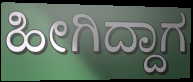
ಹೀಗಿದ್ದಾಗ